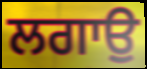
ਲਗਾਉੁ